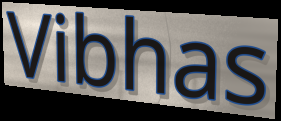
Vibhas